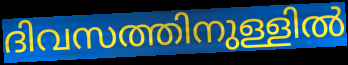
ദിവസത്തിനുള്ളിൽ